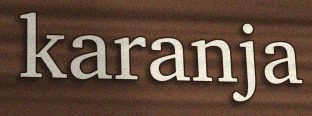
karanja